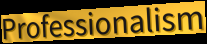
Professionalism